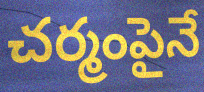
చర్మంపైనే